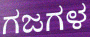
ಗಜಗಳ